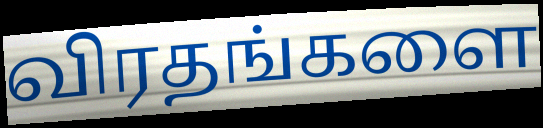
விரதங்களை